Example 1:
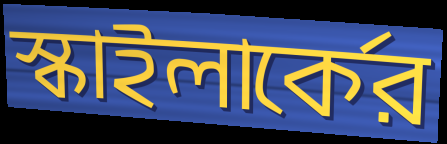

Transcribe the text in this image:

স্কাইলার্কের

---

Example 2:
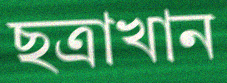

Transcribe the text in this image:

ছত্রাখান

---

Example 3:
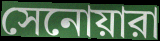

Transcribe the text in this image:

সেনোয়ারা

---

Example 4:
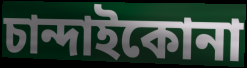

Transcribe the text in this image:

চান্দাইকোনা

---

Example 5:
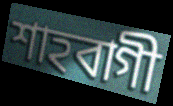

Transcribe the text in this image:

শাহবাগী